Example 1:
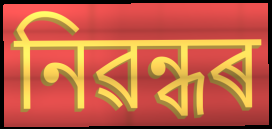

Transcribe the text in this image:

নিৱন্ধৰ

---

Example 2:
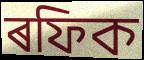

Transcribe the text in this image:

ৰফিক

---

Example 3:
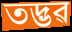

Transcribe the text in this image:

তদ্ভৱ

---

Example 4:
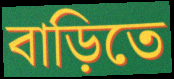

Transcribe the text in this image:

বাড়িতে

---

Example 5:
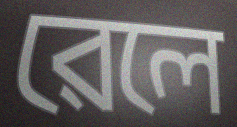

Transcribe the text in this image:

ৱেলে